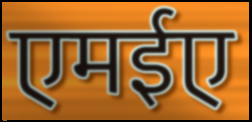
एमईए